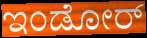
ಇಂಡೋರ್